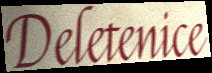
Deletenice